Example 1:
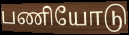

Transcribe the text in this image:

பணியோடு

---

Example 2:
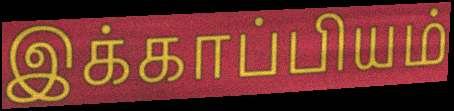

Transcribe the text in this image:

இக்காப்பியம்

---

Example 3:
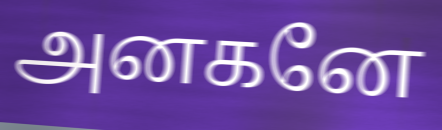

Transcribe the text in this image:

அனகனே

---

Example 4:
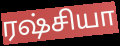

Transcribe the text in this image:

ரஷ்சியா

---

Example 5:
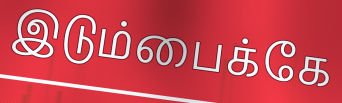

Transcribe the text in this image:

இடும்பைக்கே